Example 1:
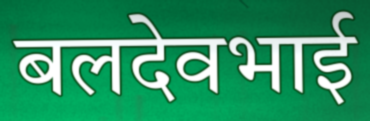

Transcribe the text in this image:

बलदेवभाई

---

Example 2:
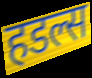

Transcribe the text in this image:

हडल्स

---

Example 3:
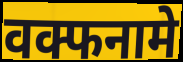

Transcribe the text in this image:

वक्फनामे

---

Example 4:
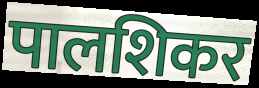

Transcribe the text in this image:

पालशिकर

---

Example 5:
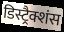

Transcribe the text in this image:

डिस्ट्रैक्शंस